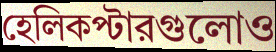
হেলিকপ্টারগুলোও